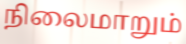
நிலைமாறும்